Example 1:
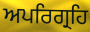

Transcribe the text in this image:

ਅਪਰਿਗ੍ਰਹਿ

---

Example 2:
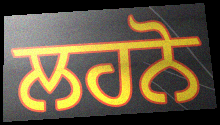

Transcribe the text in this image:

ਲਹਨੋ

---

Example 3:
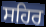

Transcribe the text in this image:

ਸਹਿਰ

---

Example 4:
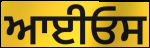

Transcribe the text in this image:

ਆਈਓਸ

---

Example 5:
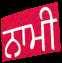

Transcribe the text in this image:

ਨਾਮੀ